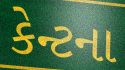
કેન્ટના